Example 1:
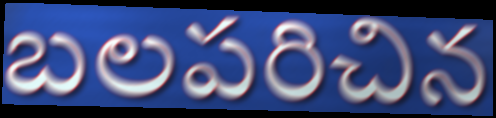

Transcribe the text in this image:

బలపరిచిన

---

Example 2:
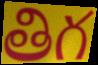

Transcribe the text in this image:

తిగ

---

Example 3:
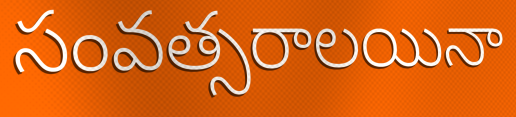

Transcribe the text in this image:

సంవత్సరాలయినా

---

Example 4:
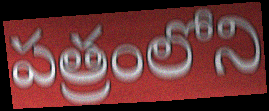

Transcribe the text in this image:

పత్రంలోని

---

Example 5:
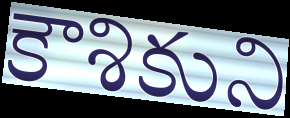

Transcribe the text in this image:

కౌశికుని